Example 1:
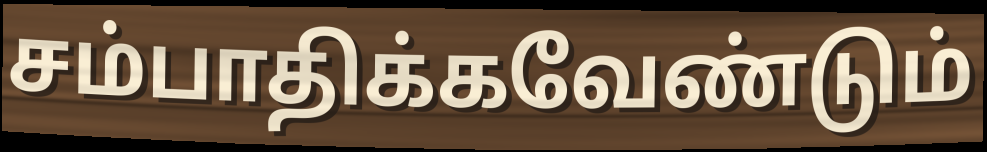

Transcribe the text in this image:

சம்பாதிக்கவேண்டும்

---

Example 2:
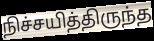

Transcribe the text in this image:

நிச்சயித்திருந்த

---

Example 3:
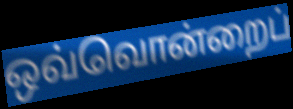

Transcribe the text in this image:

ஒவ்வொன்றைப்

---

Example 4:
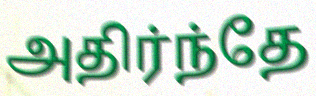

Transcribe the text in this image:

அதிர்ந்தே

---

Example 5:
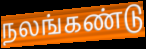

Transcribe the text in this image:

நலங்கண்டு